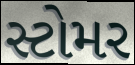
સ્ટોમર